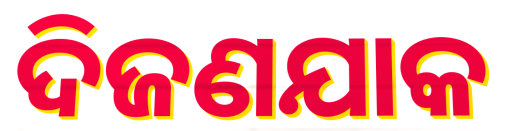
ଦିଜଣଯାକ